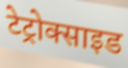
टेट्रोक्साइड